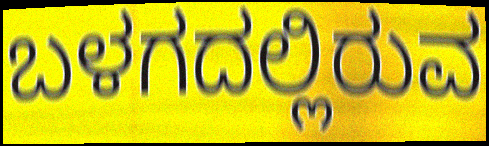
ಬಳಗದಲ್ಲಿರುವ